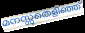
മനസ്സുതെളിഞ്ഞ്